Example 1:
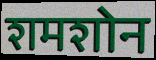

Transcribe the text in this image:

शमशोन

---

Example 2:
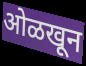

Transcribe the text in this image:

ओळखून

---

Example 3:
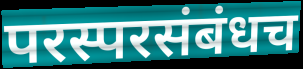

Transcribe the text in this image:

परस्परसंबंधच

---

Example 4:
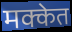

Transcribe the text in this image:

मक्केत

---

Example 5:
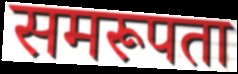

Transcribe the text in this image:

समरूपता